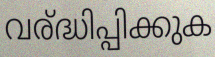
വര്ദ്ധിപ്പിക്കുക